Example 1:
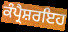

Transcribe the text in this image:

ਕੰਪ੍ਰੈਸ਼ਰਇਹ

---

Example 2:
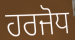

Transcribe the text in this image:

ਹਰਜੋਧ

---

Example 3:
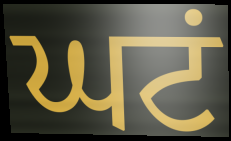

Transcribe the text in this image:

ਘਟਂ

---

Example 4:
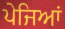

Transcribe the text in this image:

ਪੇਜਿਆਂ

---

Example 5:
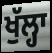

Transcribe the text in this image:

ਖੁੱਲ੍ਹਾ